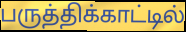
பருத்திக்காட்டில்